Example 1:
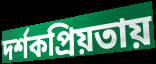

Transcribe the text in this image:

দর্শকপ্রিয়তায়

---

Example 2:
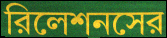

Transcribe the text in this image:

রিলেশনসের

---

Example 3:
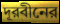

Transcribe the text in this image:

দূরবীনের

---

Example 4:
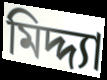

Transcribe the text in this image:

মিদ্দ্যা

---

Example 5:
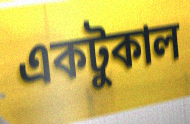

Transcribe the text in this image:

একটুকাল